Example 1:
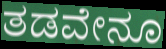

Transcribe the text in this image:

ತಡವೇನೂ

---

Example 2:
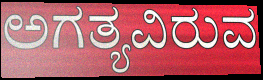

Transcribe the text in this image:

ಅಗತ್ಯವಿರುವ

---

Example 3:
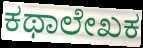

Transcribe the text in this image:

ಕಥಾಲೇಖಕ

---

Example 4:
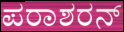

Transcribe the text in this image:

ಪರಾಶರನ್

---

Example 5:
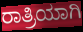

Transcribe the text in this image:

ರಾತ್ರಿಯಾಗಿ